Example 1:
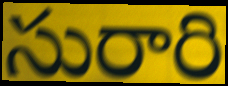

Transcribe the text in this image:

సురారి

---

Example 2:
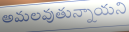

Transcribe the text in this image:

అమలవుతున్నాయని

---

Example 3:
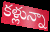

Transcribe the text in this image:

కళ్లున్నా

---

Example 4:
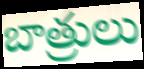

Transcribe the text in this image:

బాత్రులు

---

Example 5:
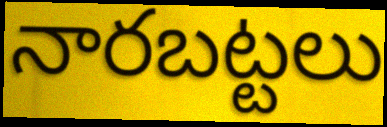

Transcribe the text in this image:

నారబట్టలు